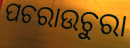
ପଚରାଉଚୁରା